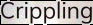
Crippling